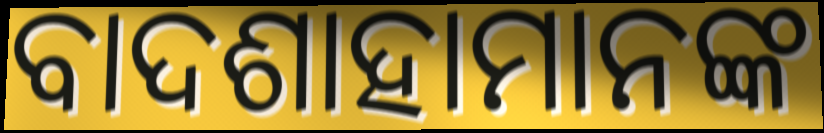
ବାଦଶାହାମାନଙ୍କ